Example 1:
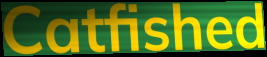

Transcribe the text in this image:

Catfished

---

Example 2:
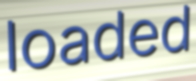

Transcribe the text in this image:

loaded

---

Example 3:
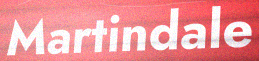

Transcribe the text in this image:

Martindale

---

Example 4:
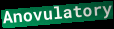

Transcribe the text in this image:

Anovulatory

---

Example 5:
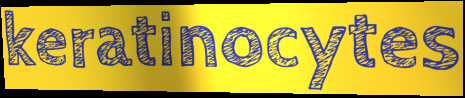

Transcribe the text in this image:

keratinocytes